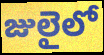
జులైలో